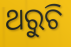
ଥରୁଚି